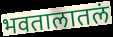
भवतालातलं